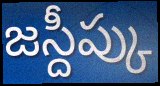
జస్దీప్కు